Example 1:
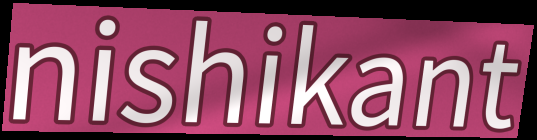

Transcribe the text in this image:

nishikant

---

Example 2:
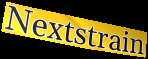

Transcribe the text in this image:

Nextstrain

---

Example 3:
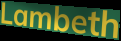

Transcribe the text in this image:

Lambeth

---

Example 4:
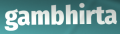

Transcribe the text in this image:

gambhirta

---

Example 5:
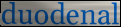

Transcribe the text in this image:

duodenal